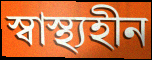
স্বাস্থ্যহীন